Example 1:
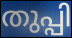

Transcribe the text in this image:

തുപ്പി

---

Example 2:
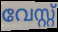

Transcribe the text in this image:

വേസ്റ്റ്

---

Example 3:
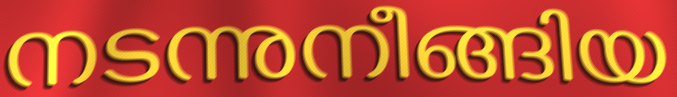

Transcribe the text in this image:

നടന്നുനീങ്ങിയ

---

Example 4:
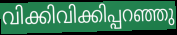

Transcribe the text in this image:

വിക്കിവിക്കിപ്പറഞ്ഞു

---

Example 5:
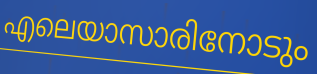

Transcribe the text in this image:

എലെയാസാരിനോടും